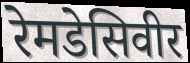
रेमडेसिवीर